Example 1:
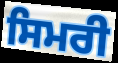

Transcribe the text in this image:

ਸਿਮਰੀ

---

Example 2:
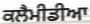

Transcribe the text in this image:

ਕਲੈਮੀਡੀਆ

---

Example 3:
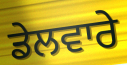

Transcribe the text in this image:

ਡੇਲਵਾਰੇ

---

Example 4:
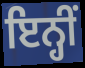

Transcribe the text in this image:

ਇਨ੍ਹੀਂ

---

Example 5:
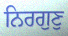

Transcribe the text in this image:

ਨਿਰਗੁਣੁ